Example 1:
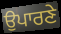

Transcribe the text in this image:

ਉਪਾਰਣੇ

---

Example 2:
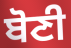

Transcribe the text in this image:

ਬੋਣੀ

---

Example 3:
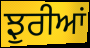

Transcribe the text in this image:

ਝੁਰੀਆਂ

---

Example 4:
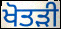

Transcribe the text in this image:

ਖੋਤੜੀ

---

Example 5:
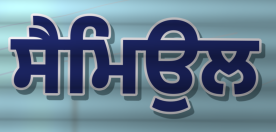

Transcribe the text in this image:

ਸੈਮਿਉਲ